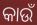
କାଉଁ